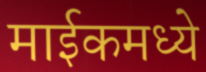
माईकमध्ये